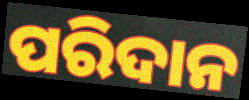
ପରିଦାନ